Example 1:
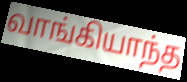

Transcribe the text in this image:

வாங்கியாந்த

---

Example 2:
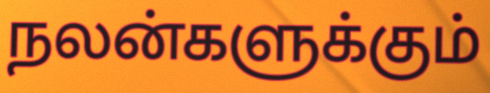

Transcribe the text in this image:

நலன்களுக்கும்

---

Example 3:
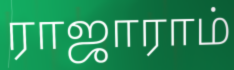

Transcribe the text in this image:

ராஜாராம்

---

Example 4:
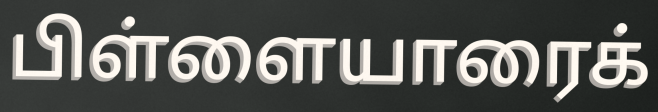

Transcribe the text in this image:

பிள்ளையாரைக்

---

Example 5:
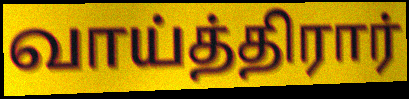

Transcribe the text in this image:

வாய்த்திரார்